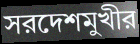
সরদেশমুখীর